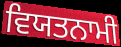
ਵਿਯਤਨਾਮੀ